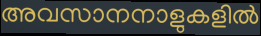
അവസാനനാളുകളിൽ